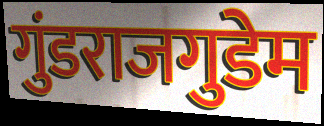
गुंडराजगुडेम